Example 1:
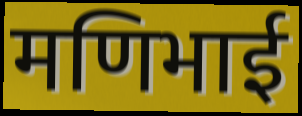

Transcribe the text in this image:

मणिभाई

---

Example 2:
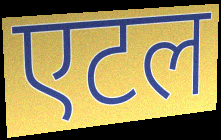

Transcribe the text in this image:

एटल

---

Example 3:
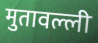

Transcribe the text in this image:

मुतावल्ली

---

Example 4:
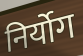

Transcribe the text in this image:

निर्योग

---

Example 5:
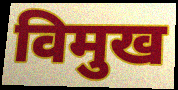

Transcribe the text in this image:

विमुख